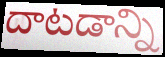
దాటడాన్ని